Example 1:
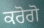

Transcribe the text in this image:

ਕਰੋਗੋ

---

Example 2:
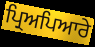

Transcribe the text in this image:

ਪ੍ਰਿਅਪਿਆਰੇ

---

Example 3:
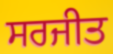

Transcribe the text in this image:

ਸਰਜੀਤ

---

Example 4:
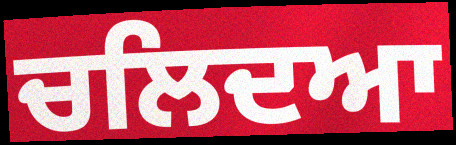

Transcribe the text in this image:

ਚਲਿਦਆ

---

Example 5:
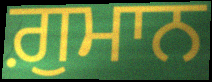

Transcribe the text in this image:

ਗ਼ੁਮਾਨ